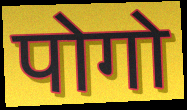
पोगो